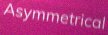
Asymmetrical